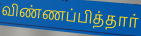
விண்ணப்பித்தார்